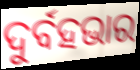
ଦୁର୍ବହଭାର